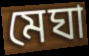
মেঘা